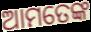
ଆମତେଙ୍କ